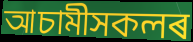
আচামীসকলৰ